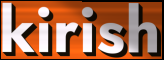
kirish